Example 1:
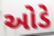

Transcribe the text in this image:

ઓડે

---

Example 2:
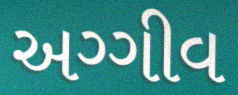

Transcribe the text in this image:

અગ્ગીવ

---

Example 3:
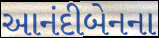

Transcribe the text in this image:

આનંદીબેનના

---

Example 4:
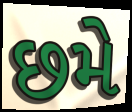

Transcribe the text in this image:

છમે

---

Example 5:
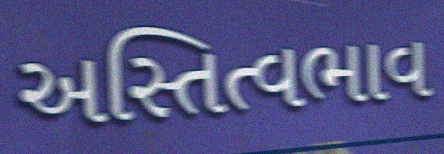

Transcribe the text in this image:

અસ્તિત્વભાવ